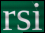
rsi